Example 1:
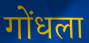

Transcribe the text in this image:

गोंधला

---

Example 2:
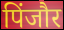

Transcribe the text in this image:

पिंजौर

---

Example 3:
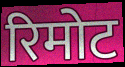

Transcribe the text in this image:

रिमोट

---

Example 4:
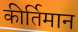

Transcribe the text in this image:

कीर्तिमान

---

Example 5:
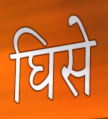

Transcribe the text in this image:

घिसे